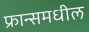
फ्रान्समधील